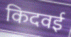
किदवई